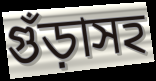
গুঁড়াসহ